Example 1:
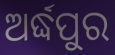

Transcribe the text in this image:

ଅର୍ଦ୍ଧପୁର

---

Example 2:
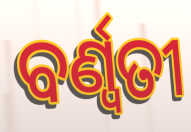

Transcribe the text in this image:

ବର୍ଣ୍ବତୀ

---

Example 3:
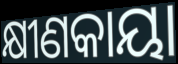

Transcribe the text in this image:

କ୍ଷୀଣକାୟା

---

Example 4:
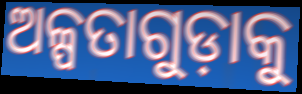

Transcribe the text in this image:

ଅଳ୍ପତାଗୁଡ଼ାକୁ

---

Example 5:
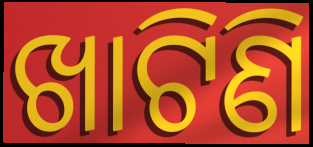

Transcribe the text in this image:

ଖାଟିଣି